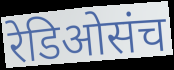
रेडिओसंच